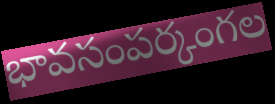
భావసంపర్కంగల